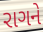
રાગને